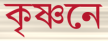
কৃষ্ণনে